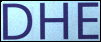
DHE